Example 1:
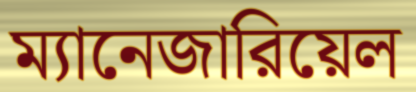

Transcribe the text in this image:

ম্যানেজারিয়েল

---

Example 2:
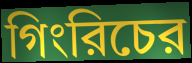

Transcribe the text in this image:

গিংরিচের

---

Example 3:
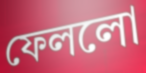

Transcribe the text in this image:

ফেললো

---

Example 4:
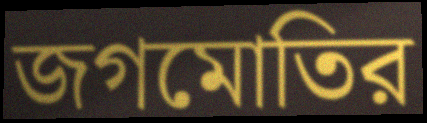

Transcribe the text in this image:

জগমোতির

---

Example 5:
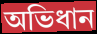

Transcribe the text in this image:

অভিধান